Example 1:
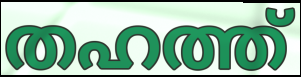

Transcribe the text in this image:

തഹത്ത്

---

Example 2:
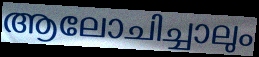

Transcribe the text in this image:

ആലോചിച്ചാലും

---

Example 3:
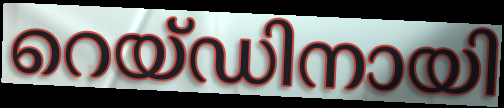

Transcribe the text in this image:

റെയ്ഡിനായി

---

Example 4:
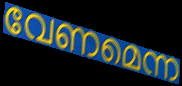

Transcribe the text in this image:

വേണമെന്ന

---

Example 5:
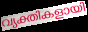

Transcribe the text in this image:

വ്യക്തികളായി